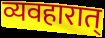
व्यवहारात्